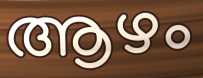
ആഴം